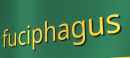
fuciphagus